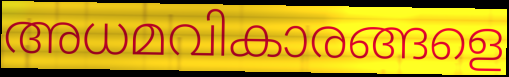
അധമവികാരങ്ങളെ